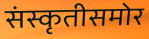
संस्कृतीसमोर